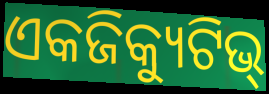
ଏକଜିକ୍ୟୁଟିଭ୍